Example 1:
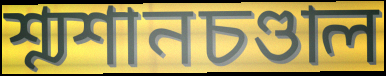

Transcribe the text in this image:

শ্মশানচণ্ডাল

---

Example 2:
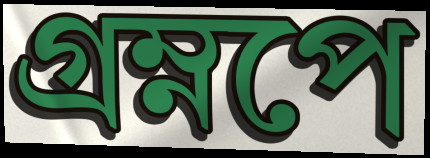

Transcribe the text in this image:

গ্রম্নপে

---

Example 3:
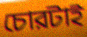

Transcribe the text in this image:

চোরটাই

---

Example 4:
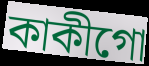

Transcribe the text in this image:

কাকীগো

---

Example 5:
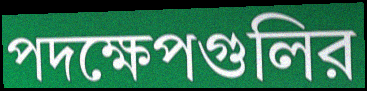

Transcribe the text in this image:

পদক্ষেপগুলির